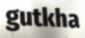
gutkha